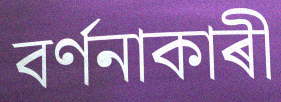
বৰ্ণনাকাৰী